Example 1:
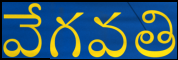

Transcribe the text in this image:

వేగవతి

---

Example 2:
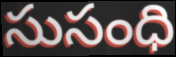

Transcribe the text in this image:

సుసంధి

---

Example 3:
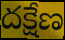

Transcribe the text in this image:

దక్షేణ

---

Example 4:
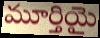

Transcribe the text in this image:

మూర్తియై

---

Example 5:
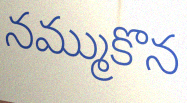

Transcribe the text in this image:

నమ్ముకొన